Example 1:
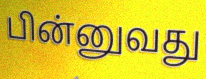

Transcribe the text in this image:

பின்னுவது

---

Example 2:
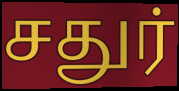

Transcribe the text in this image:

சதுர்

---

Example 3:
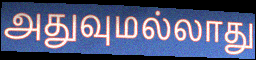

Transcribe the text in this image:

அதுவுமல்லாது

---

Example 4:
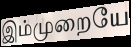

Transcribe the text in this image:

இம்முறையே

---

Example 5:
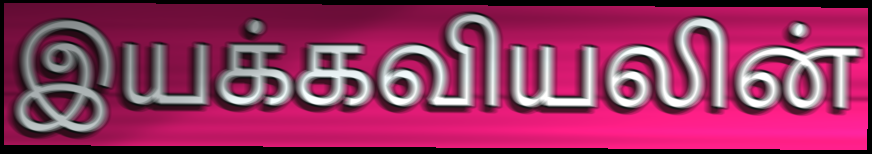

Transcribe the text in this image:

இயக்கவியலின்